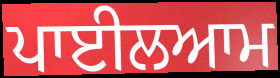
ਪਾਈਲਆਮ